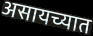
असायच्यात